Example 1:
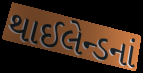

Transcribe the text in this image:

થાઈલેન્ડનાં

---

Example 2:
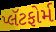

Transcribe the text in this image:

પ્લૅટફોર્મ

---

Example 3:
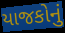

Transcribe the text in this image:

યાજકોનું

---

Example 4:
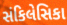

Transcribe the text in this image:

સંકિલેસિકા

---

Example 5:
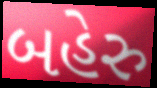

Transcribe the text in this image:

બહેરુ